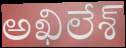
అఖిలేశ్